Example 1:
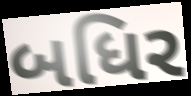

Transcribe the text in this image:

બધિર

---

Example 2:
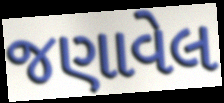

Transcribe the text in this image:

જણાવેલ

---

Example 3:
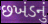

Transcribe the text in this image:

છખંડનું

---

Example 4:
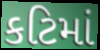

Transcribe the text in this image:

કટિમાં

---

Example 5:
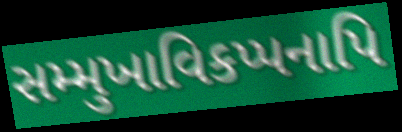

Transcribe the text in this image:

સમ્મુખાવિકપ્પનાપિ